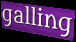
galling